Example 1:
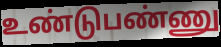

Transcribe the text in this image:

உண்டுபண்ணு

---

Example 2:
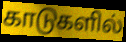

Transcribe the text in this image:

காடுகளில்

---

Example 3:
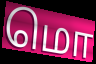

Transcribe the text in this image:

மொ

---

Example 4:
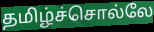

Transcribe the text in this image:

தமிழ்ச்சொல்லே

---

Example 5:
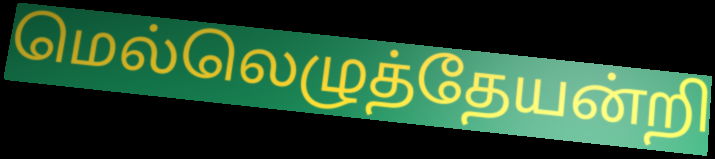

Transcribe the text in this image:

மெல்லெழுத்தேயன்றி